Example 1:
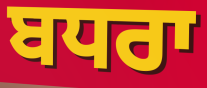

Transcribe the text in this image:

ਬਧਰਾ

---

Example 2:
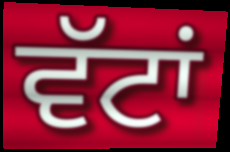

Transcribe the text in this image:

ਵੱਟਾਂ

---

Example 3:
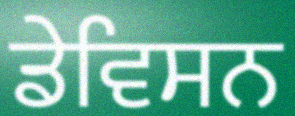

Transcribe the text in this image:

ਡੇਵਿਸਨ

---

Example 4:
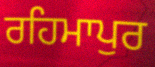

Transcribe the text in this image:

ਰਹਿਮਾਪੁਰ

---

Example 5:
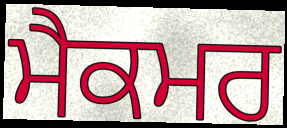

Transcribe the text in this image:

ਮੈਕਮਰ